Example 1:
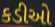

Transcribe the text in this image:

કડીઓ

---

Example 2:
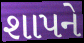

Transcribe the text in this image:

શાપને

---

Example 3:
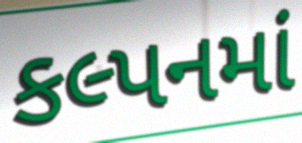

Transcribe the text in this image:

કલ્પનમાં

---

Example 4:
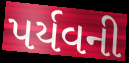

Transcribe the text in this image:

પર્યવની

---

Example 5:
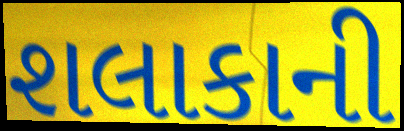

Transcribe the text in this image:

શલાકાની